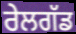
ਰੇਲਗੱਡ